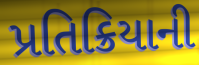
પ્રતિક્રિયાની